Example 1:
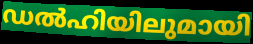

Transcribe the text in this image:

ഡൽഹിയിലുമായി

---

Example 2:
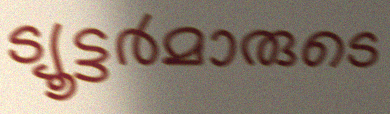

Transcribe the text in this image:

ട്യൂട്ടർമാരുടെ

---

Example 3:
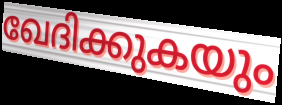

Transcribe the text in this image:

ഖേദിക്കുകയും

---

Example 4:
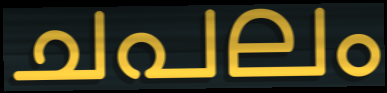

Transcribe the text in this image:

ചപലം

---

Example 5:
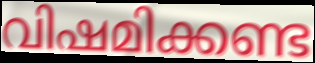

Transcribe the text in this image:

വിഷമിക്കണ്ട